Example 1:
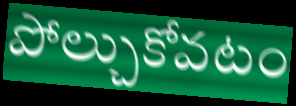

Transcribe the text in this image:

పోల్చుకోవటం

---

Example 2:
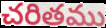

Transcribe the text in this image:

చరితము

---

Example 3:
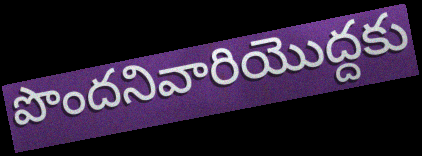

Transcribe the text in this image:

పొందనివారియొద్దకు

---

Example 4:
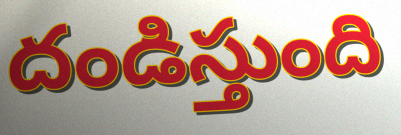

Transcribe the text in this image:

దండిస్తుంది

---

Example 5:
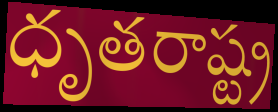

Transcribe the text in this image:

ధృతరాష్ట్ర